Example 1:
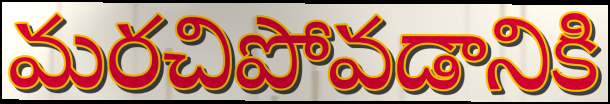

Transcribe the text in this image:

మరచిపోవడానికి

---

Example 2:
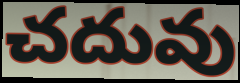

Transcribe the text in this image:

చదువు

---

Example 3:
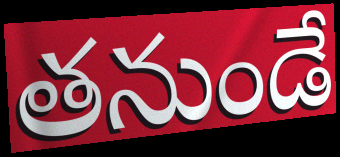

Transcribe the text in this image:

తనుండే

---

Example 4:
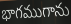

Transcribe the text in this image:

భాగముగాను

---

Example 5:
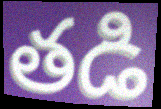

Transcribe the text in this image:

తడి